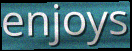
enjoys